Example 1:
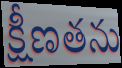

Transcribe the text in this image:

క్షీణతను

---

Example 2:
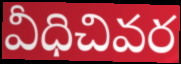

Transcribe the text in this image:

వీధిచివర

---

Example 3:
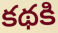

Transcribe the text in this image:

కథకి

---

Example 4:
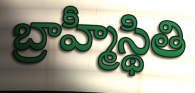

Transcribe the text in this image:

బ్రాహ్మీస్థితి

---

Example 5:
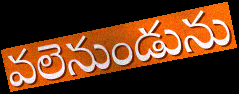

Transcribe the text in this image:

వలెనుండును